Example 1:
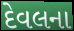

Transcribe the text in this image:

દેવલના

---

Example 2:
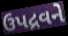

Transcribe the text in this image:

ઉપદ્રવને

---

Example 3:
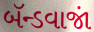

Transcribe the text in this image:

બૅન્ડવાજાં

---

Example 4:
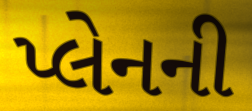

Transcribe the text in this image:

પ્લેનની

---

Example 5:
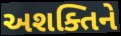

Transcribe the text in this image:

અશક્તિને